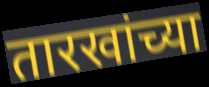
तारखांच्या